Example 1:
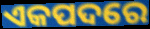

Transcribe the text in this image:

ଏକପଦରେ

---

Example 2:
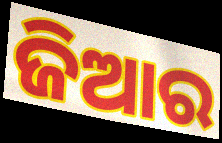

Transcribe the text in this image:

ଜିଆର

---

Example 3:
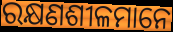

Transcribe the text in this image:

ରକ୍ଷଣଶୀଳମାନେ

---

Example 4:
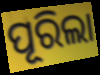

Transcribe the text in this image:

ପୂରିଲା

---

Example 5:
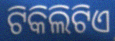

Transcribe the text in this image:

ଟିକିଲିଟିଏ